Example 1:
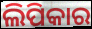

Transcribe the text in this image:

ଲିପିକାର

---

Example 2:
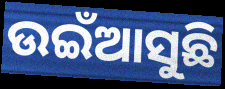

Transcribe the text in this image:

ଉଇଁଆସୁଛି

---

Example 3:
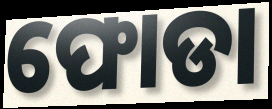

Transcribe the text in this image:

ଫୋଡା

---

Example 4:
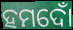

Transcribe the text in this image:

ହମଦୋଁ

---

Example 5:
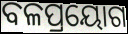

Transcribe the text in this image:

ବଳପ୍ରୟୋଗ